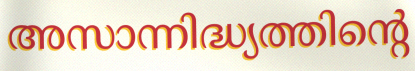
അസാന്നിദ്ധ്യത്തിന്റെ